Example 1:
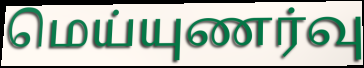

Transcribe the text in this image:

மெய்யுணர்வு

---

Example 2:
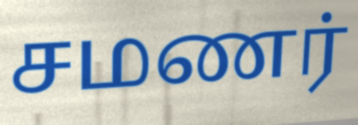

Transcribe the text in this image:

சமணர்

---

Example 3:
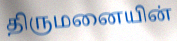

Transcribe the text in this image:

திருமனையின்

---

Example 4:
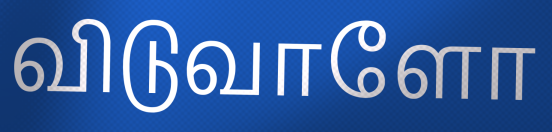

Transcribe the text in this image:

விடுவாளோ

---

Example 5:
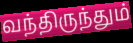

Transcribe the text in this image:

வந்திருந்தும்